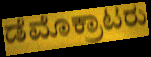
ಡೆಮೊಕ್ರಾಟರು